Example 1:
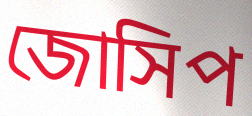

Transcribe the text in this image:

জোসিপ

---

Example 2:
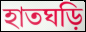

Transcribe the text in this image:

হাতঘড়ি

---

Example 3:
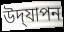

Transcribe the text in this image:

উদ্‌যাপন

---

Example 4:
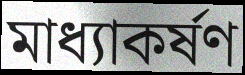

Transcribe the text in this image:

মাধ্যাকৰ্ষণ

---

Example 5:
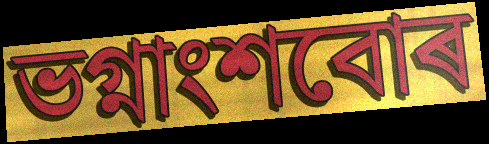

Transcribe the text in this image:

ভগ্নাংশবোৰ